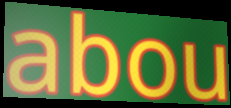
abou